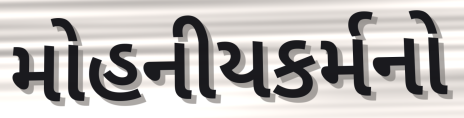
મોહનીયકર્મનો